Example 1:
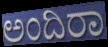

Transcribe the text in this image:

ಅಂದಿರಾ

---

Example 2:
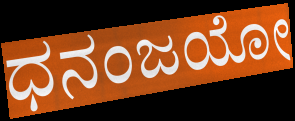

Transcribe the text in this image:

ಧನಂಜಯೋ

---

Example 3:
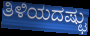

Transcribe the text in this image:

ತಿಳಿಯದಷ್ಟು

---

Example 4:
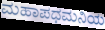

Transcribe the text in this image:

ಮಹಾಪಧಮನಿಯ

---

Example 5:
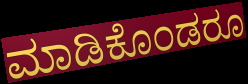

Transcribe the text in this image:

ಮಾಡಿಕೊಂಡರೂ